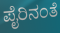
ಪೈರಿನಂತೆ